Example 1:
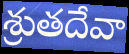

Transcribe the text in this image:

శ్రుతదేవా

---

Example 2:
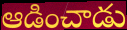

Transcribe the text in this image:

ఆడించాడు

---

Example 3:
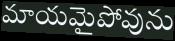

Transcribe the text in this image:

మాయమైపోవును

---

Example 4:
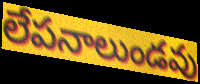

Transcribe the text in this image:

లేపనాలుండవు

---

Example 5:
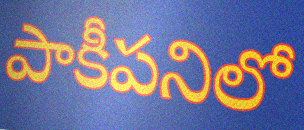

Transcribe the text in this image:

పాకీపనిలో